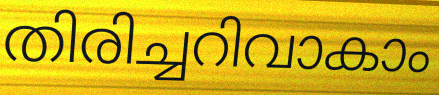
തിരിച്ചറിവാകാം